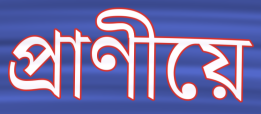
প্ৰাণীয়ে